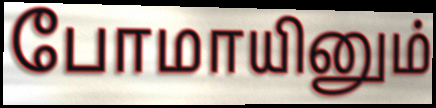
போமாயினும்